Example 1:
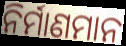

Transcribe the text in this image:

ନିର୍ମାଣମାନ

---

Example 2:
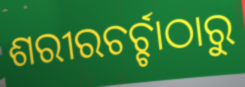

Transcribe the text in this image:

ଶରୀରଚର୍ଚ୍ଚାଠାରୁ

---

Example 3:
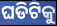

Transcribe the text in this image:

ଘଡିଟିକୁ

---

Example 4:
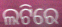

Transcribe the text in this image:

ଲଟିରେ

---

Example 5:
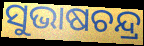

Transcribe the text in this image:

ସୁଭାଷଚନ୍ଦ୍ର